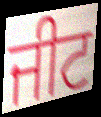
ਜੀਟ